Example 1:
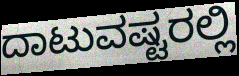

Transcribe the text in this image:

ದಾಟುವಷ್ಟರಲ್ಲಿ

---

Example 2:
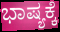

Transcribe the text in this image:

ಭಾಷ್ಯಕ್ಕೆ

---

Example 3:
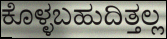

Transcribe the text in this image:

ಕೊಳ್ಳಬಹುದಿತ್ತಲ್ಲ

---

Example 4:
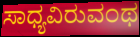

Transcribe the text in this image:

ಸಾಧ್ಯವಿರುವಂಥ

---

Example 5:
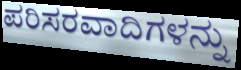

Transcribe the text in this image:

ಪರಿಸರವಾದಿಗಳನ್ನು